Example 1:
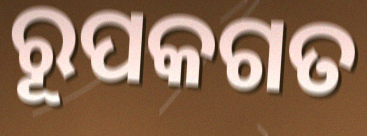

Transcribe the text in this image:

ରୂପକଗତ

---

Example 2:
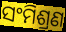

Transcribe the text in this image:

ସଂମିଶ୍ରଣ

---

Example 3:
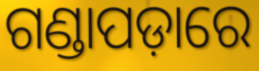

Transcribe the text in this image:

ଗଣ୍ଡାପଡ଼ାରେ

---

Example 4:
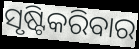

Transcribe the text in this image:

ସୃଷ୍ଟିକରିବାର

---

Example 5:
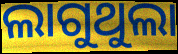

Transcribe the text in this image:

ଲାଗୁଥୁଲା